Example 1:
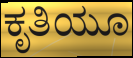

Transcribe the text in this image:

ಕೃತಿಯೂ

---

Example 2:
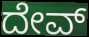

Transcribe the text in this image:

ದೇವ್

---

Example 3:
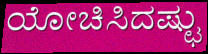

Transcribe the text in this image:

ಯೋಚಿಸಿದಷ್ಟು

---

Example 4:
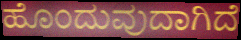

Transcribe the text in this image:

ಹೊಂದುವುದಾಗಿದೆ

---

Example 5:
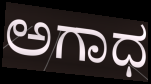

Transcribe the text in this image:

ಅಗಾಧ